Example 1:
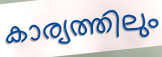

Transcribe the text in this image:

കാര്യത്തിലും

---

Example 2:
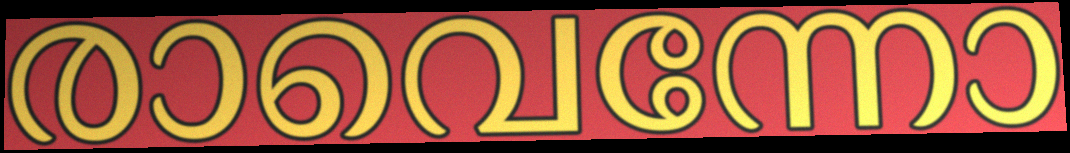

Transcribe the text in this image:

രാവെന്നോ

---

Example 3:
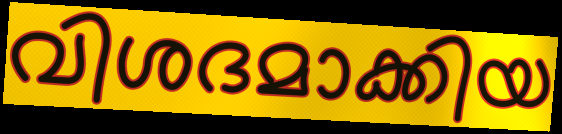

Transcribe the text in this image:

വിശദമാക്കിയ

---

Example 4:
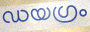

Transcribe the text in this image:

ഡയഗ്രം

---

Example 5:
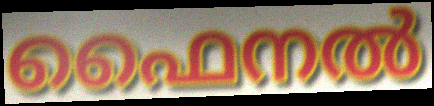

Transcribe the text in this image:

ഫൈനൽ